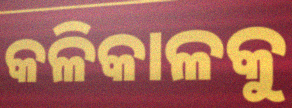
କଳିକାଳକୁ